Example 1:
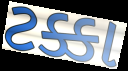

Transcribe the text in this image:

ટક્કા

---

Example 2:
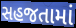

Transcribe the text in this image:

સહજતામાં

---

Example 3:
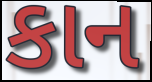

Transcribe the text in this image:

કાન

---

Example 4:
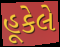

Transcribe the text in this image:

હૂકેલે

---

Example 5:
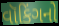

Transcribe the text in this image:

વૉકિંગનો